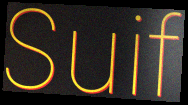
Suif